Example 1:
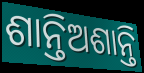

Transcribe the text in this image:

ଶାନ୍ତିଅଶାନ୍ତି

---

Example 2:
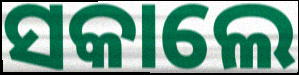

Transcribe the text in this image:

ସକାଲେ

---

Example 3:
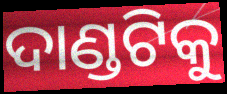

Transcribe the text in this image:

ଦାଣ୍ଡଟିକୁ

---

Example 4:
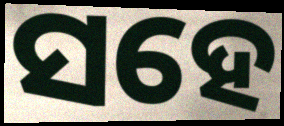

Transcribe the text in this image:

ସହେ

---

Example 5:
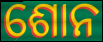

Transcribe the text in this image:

ଶୋନ